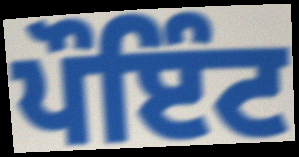
ਪੌਇੰਟ